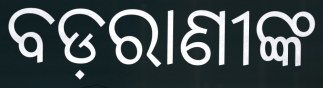
ବଡ଼ରାଣୀଙ୍କ